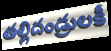
తల్లిదండ్రులకీ